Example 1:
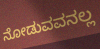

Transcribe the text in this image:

ನೋಡುವವನಲ್ಲ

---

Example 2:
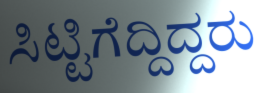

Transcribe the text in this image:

ಸಿಟ್ಟಿಗೆದ್ದಿದ್ದರು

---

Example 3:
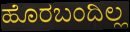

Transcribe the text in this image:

ಹೊರಬಂದಿಲ್ಲ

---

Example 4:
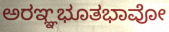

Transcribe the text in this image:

ಅರಞ್ಞಭೂತಭಾವೋ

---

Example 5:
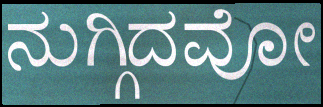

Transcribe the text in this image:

ನುಗ್ಗಿದವೋ